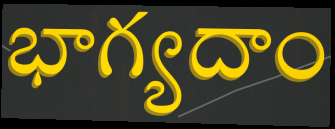
భాగ్యదాం